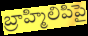
బ్రాహ్మిలిపిపై